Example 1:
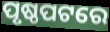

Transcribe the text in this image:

ପୃଷ୍ଠପଟରେ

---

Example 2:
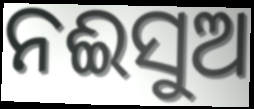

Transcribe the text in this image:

ନଈସୁଅ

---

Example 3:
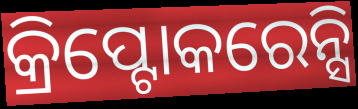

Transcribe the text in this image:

କ୍ରିପ୍ଟୋକରେନ୍ସି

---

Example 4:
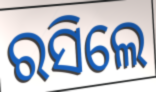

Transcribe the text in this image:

ରସିଲେ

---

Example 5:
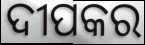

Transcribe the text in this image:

ଦୀପକର